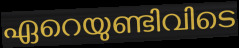
ഏറെയുണ്ടിവിടെ